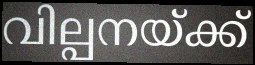
വില്പനയ്ക്ക്